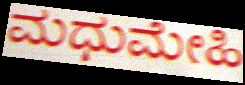
ಮಧುಮೇಹಿ